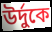
উর্দুকে